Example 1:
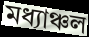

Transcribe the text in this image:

মধ্যাঞ্চল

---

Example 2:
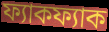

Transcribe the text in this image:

ফ্যাকফ্যাক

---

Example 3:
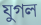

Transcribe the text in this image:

যুগল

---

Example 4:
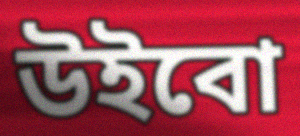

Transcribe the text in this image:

উইবো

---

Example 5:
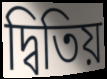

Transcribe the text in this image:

দ্বিতিয়